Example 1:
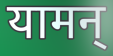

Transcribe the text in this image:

यामन्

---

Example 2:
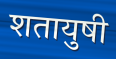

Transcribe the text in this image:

शतायुषी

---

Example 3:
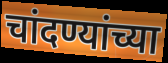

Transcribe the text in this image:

चांदण्यांच्या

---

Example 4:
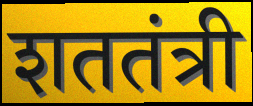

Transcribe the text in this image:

शततंत्री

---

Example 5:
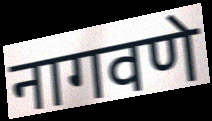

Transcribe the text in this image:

नागवणे